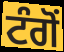
ਟੰਗੋਂ